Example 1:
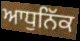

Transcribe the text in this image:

ਆਧੁਨਿੱਕ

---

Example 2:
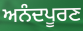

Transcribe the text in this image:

ਅਨੰਦਪੂਰਣ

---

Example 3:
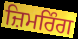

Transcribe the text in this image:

ਜ਼ਿਮਰਿੰਗ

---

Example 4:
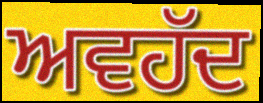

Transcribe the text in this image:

ਅਵਹੱਦ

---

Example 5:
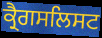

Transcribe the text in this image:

ਕ੍ਰੈਗਸਲਿਸਟ